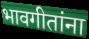
भावगीतांना